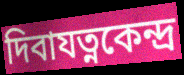
দিবাযত্নকেন্দ্র